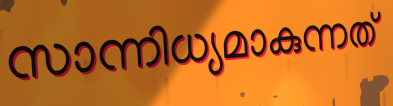
സാന്നിധ്യമാകുന്നത്